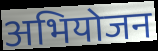
अभियोजन